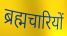
ब्रह्मचारियों